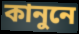
কানুনে